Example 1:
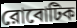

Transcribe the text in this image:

রোবোটিক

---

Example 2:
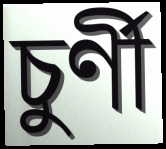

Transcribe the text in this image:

চুর্ণী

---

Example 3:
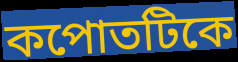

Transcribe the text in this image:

কপোতটিকে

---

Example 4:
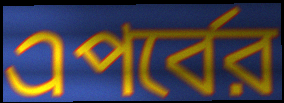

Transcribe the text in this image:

এপর্বের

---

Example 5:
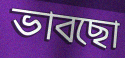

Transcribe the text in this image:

ভাবছো